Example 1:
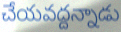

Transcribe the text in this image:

చేయవద్దన్నాడు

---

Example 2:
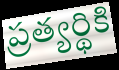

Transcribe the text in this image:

ప్రత్యర్థికి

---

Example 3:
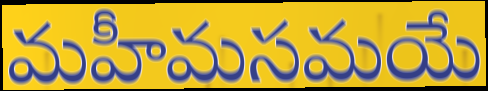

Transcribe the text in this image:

మహీమసమయే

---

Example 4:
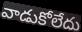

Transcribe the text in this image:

వాడుకోలేదు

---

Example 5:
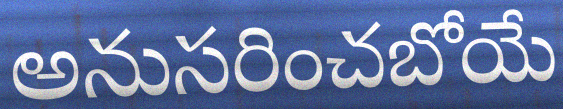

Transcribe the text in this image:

అనుసరించబోయే